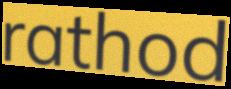
rathod